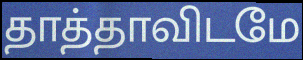
தாத்தாவிடமே